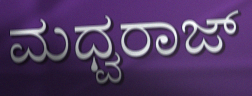
ಮಧ್ವರಾಜ್